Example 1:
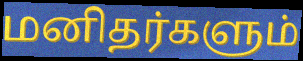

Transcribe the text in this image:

மனிதர்களும்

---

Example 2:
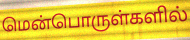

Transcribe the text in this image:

மென்பொருள்களில்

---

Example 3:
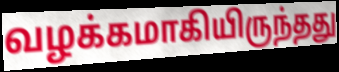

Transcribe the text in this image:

வழக்கமாகியிருந்தது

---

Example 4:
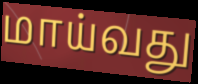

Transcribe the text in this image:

மாய்வது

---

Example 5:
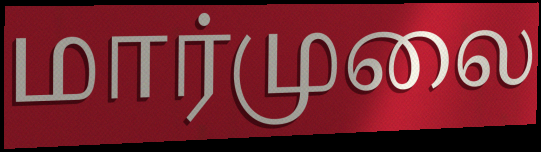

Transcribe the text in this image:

மார்முலை